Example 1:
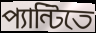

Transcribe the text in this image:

প্যান্টিতে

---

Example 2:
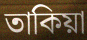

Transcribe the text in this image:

তাকিয়া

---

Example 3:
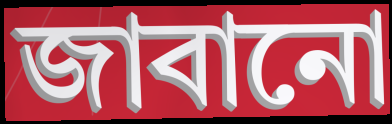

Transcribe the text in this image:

জাবানো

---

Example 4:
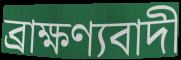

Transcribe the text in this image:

ব্রাক্ষণ্যবাদী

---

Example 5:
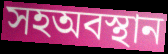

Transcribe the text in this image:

সহঅবস্থান